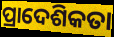
ପ୍ରାଦେଶିକତା